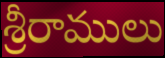
శ్రీరాములు